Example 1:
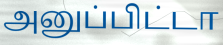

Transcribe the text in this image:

அனுப்பிட்டா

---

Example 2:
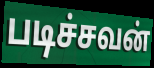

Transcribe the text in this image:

படிச்சவன்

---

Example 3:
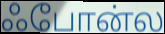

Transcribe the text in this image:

ஃபோன்ல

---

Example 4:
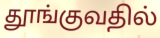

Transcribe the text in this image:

தூங்குவதில்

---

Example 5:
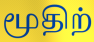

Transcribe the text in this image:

மூதிற்